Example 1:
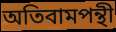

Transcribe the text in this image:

অতিবামপন্থী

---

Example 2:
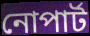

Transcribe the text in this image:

নোপার্ট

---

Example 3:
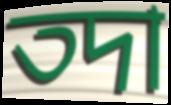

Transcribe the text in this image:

তদা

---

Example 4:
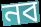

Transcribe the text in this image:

নব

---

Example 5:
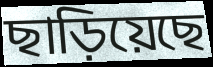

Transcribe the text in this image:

ছাড়িয়েছে